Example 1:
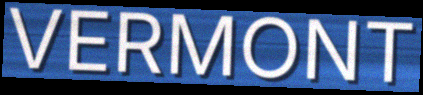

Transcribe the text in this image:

VERMONT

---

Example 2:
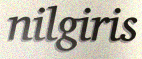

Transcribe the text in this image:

nilgiris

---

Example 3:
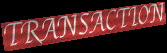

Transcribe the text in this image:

TRANSACTION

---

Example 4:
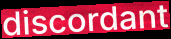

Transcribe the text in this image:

discordant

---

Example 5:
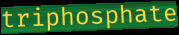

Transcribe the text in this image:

triphosphate